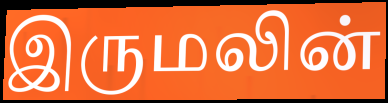
இருமலின்